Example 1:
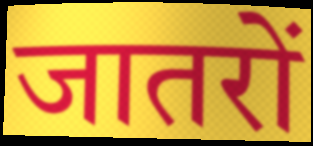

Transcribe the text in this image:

जातरों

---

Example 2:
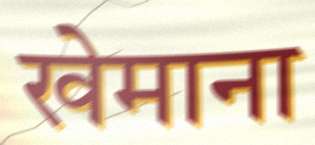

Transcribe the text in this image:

खेमाना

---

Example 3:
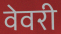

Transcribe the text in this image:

वेवरी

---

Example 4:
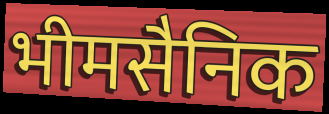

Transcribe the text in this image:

भीमसैनिक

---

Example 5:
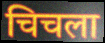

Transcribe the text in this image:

चिचला